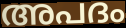
അപദം